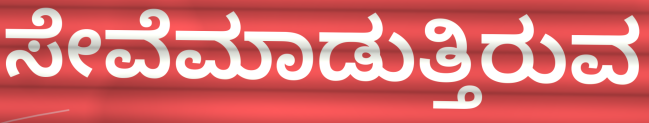
ಸೇವೆಮಾಡುತ್ತಿರುವ